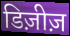
डिज़ीज़